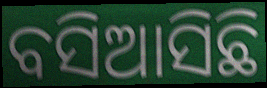
ବସିଆସିଛି